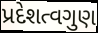
પ્રદેશત્વગુણ